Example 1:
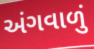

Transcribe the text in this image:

અંગવાળું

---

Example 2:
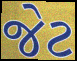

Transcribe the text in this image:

જેટ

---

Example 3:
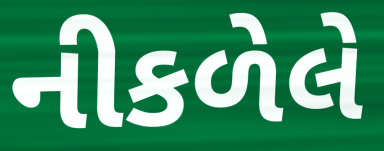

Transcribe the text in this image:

નીકળેલે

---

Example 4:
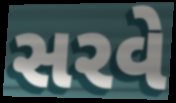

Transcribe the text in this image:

સરવે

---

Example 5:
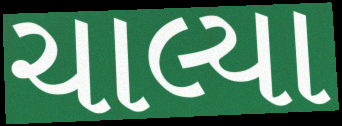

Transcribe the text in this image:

ચાલ્યા